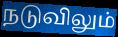
நடுவிலும்